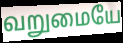
வறுமையே